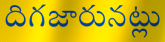
దిగజారునట్లు